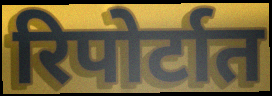
रिपोर्टात